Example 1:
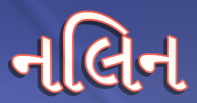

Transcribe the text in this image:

નલિન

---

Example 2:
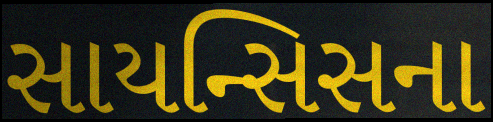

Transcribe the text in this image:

સાયન્સિસના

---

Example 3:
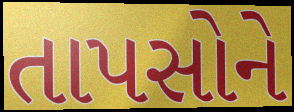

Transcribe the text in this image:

તાપસોને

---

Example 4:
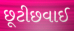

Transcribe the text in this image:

છૂટીછવાઈ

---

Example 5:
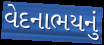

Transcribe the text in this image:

વેદનાભયનું